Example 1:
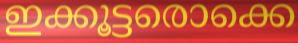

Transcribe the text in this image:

ഇക്കൂട്ടരൊക്കെ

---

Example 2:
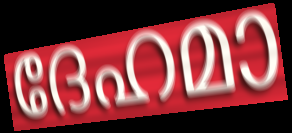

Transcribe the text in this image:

ദേഹമാ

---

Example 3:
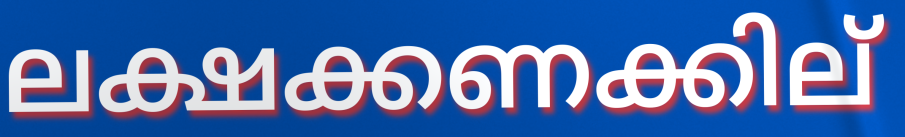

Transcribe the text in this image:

ലക്ഷക്കണക്കില്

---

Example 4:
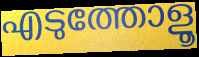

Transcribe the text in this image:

എടുത്തോളൂ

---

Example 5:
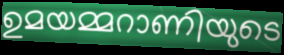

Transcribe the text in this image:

ഉമയമ്മറാണിയുടെ